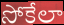
సోకేలా